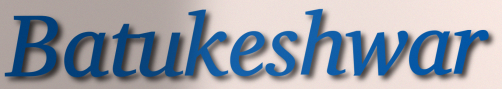
Batukeshwar